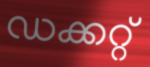
ഡക്കറ്റ്